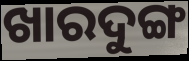
ଖାରଦୁଙ୍ଗ